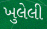
ખુલેલી